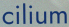
cilium